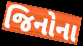
જિનોના